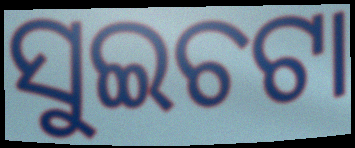
ସୁଇଚଟା